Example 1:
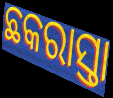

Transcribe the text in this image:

ଛକରାସ୍ତା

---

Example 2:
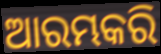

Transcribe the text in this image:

ଆରମ୍ଭକରି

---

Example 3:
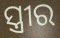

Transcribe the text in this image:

ସ୍ତ୍ରୀର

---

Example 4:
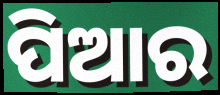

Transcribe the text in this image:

ପିଆର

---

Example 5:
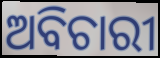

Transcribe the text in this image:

ଅବିଚାରୀ